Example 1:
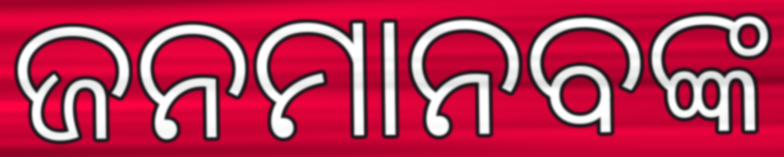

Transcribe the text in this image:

ଜନମାନବଙ୍କ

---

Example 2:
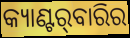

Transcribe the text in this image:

କ୍ୟାଣ୍ଟର୍‌ବାରିର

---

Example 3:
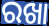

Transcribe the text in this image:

ରଖା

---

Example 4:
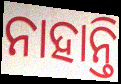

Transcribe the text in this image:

ନାହାନ୍ତି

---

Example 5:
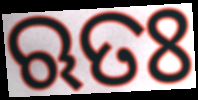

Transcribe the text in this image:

ଋତଃ